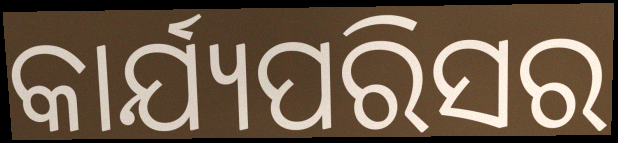
କାର୍ଯ୍ୟପରିସର